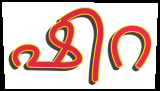
ഷിറ